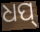
ଧପ୍